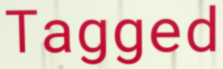
Tagged